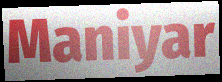
Maniyar